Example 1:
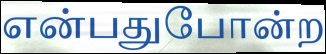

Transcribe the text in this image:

என்பதுபோன்ற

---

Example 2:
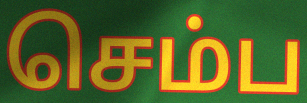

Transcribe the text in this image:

செம்ப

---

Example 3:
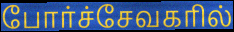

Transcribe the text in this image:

போர்ச்சேவகரில்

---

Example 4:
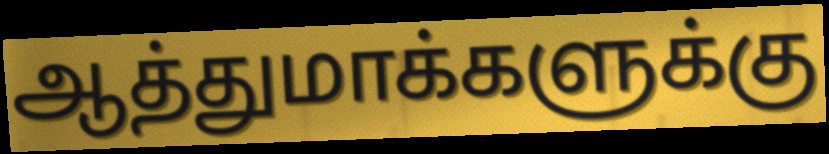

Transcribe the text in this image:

ஆத்துமாக்களுக்கு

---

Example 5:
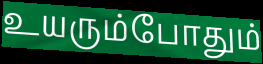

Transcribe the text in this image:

உயரும்போதும்